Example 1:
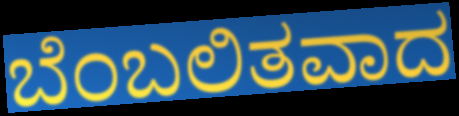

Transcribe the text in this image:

ಬೆಂಬಲಿತವಾದ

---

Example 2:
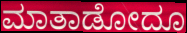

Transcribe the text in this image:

ಮಾತಾಡೋದೂ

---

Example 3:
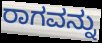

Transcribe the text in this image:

ರಾಗವನ್ನು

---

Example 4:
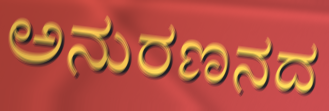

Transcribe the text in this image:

ಅನುರಣನದ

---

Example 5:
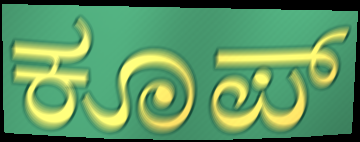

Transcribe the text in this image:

ಕೂಪ್